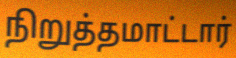
நிறுத்தமாட்டார்